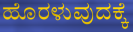
ಹೊರಳುವುದಕ್ಕೆ